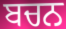
ਬਚਨ